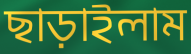
ছাড়াইলাম